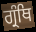
ਗ੍ਰੰਥਿ